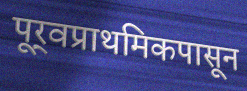
पूर्वप्राथमिकपासून